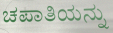
ಚಪಾತಿಯನ್ನು